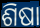
ଶିଷା